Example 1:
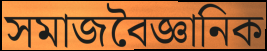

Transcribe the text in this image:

সমাজবৈজ্ঞানিক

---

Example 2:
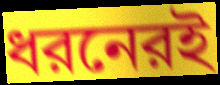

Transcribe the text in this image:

ধরনেরই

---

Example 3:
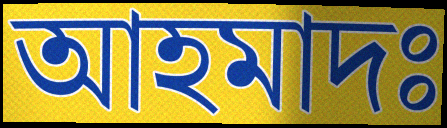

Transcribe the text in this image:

আহমাদঃ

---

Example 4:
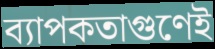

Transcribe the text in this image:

ব্যাপকতাগুণেই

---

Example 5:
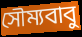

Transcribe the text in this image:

সৌম্যবাবু